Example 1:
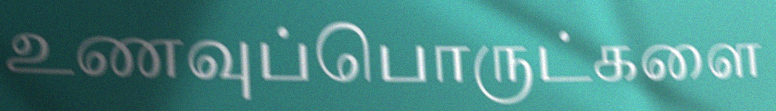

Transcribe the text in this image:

உணவுப்பொருட்களை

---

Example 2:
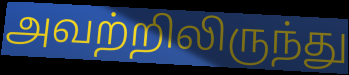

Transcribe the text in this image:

அவற்றிலிருந்து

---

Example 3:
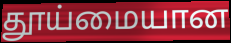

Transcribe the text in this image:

தூய்மையான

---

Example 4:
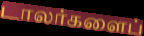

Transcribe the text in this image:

டாலர்களைப்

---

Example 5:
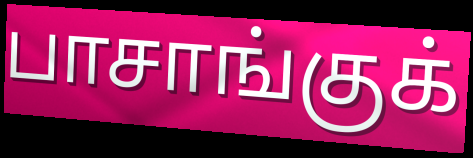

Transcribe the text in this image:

பாசாங்குக்